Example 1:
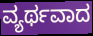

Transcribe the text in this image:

ವ್ಯರ್ಥವಾದ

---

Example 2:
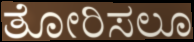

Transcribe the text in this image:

ತೋರಿಸಲೂ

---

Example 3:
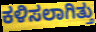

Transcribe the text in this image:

ಕಳಿಸಲಾಗಿತ್ತು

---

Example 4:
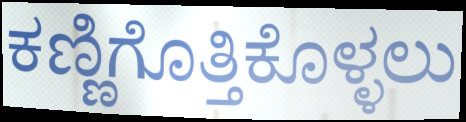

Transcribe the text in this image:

ಕಣ್ಣಿಗೊತ್ತಿಕೊಳ್ಳಲು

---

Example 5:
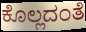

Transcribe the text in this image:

ಕೊಲ್ಲದಂತೆ